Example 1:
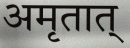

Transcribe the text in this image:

अमृतात्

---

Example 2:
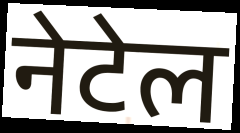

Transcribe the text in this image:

नेटेल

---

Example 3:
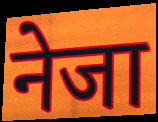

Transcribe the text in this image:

नेजा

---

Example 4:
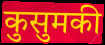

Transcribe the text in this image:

कुसुमकी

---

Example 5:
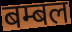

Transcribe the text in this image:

बम्बल